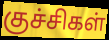
குச்சிகள்